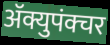
ॲक्युपंक्चर